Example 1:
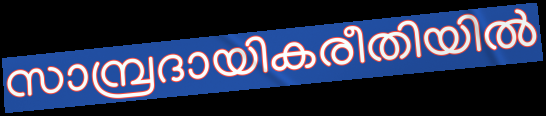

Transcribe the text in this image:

സാമ്പ്രദായികരീതിയിൽ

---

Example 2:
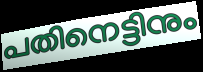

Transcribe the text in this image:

പതിനെട്ടിനും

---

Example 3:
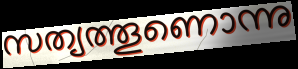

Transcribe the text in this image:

സത്യത്തൂണൊന്നു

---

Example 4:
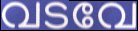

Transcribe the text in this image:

വടവേ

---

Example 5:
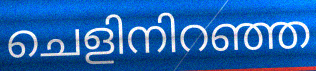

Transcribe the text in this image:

ചെളിനിറഞ്ഞ